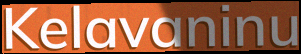
Kelavaninu